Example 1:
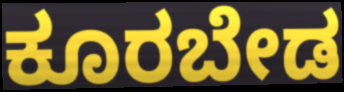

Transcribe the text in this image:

ಕೂರಬೇಡ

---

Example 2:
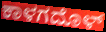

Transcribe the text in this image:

ಕಾಳಗದೊಳ್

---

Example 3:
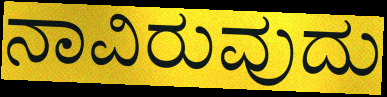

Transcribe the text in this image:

ನಾವಿರುವುದು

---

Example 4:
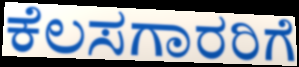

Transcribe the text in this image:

ಕೆಲಸಗಾರರಿಗೆ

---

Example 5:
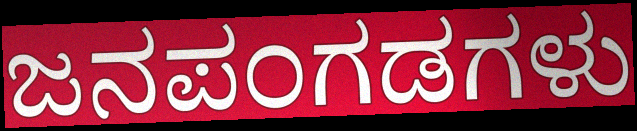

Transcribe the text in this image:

ಜನಪಂಗಡಗಳು